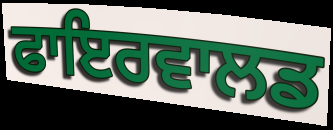
ਫਾਇਰਵਾਲਡ